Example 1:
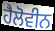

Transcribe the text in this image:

ਹੈਲੋਵੀਨ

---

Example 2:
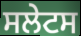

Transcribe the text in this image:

ਸਲੇਟਸ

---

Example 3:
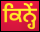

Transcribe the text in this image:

ਕਿਨ੍ਹੇਂ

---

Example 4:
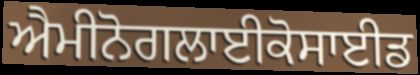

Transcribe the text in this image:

ਐਮੀਨੋਗਲਾਈਕੋਸਾਈਡ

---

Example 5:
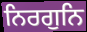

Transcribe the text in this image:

ਨਿਰਗੁਨਿ